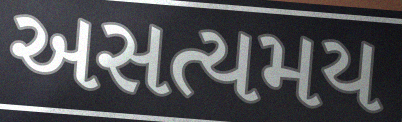
અસત્યમય